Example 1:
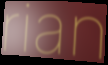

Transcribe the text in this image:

rian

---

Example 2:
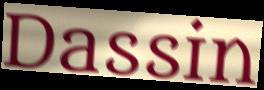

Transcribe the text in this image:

Dassin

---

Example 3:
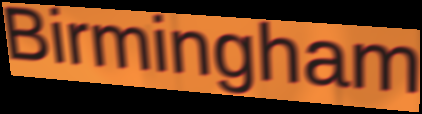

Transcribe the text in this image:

Birmingham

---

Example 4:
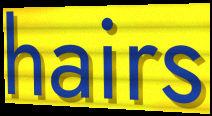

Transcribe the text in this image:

hairs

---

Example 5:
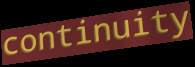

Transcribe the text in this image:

continuity